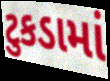
ટુકડામાં